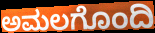
ಅಮಲಗೊಂದಿ